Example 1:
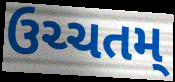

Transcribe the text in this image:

ઉચ્ચતમ્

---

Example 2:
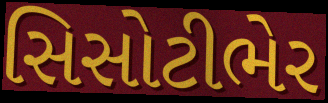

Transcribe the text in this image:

સિસોટીભેર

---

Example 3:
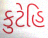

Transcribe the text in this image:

કુટેહિ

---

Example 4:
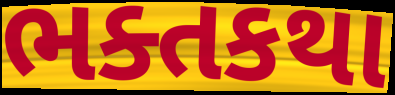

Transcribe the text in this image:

ભક્તકથા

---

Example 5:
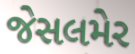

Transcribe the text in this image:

જેસલમેર